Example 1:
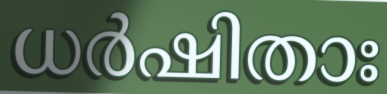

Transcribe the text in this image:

ധർഷിതാഃ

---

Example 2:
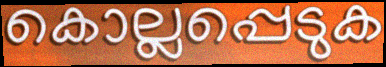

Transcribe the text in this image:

കൊല്ലപ്പെടുക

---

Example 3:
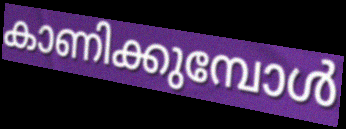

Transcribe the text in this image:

കാണിക്കുമ്പോൾ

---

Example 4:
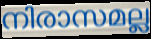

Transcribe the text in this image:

നിരാസമല്ല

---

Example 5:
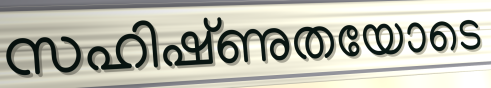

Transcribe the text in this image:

സഹിഷ്‌ണുതയോടെ